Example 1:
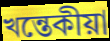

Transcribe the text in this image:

খন্তেকীয়া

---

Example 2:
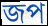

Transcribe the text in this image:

জপ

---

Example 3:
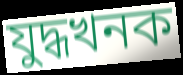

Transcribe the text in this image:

যুদ্ধখনক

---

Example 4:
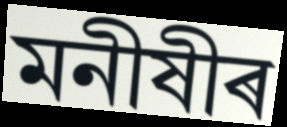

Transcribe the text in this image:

মনীষীৰ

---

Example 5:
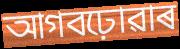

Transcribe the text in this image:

আগবঢ়োৱাৰ